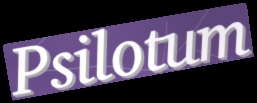
Psilotum